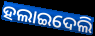
ହଲାଇଦେଲି